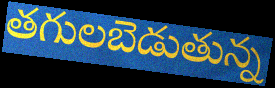
తగులబెడుతున్న